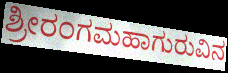
ಶ್ರೀರಂಗಮಹಾಗುರುವಿನ